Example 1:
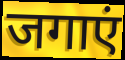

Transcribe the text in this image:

जगाएं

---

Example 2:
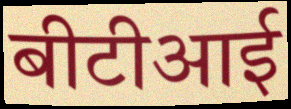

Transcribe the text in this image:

बीटीआई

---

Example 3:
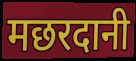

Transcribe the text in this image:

मछरदानी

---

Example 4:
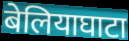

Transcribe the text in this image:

बेलियाघाटा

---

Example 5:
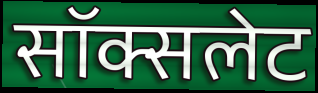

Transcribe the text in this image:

सॉक्सलेट